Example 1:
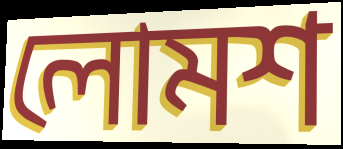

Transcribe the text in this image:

লোমশ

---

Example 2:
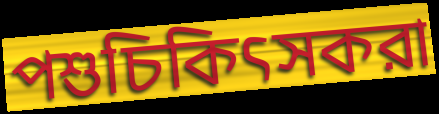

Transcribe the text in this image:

পশুচিকিৎসকরা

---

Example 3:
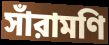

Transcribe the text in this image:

সাঁরামণি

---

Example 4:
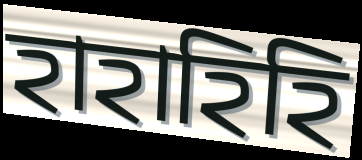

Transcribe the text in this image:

হাহাহিহি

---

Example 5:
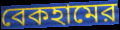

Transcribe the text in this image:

বেকহামের